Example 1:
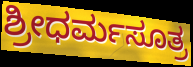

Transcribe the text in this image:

ಶ್ರೀಧರ್ಮಸೂತ್ರ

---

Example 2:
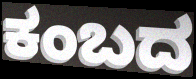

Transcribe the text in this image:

ಕಂಬದ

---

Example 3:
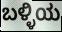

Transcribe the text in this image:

ಬಳ್ಳಿಯ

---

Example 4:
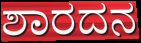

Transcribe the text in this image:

ಶಾರದನ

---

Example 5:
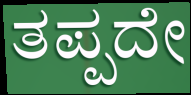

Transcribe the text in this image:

ತಪ್ಪದೇ